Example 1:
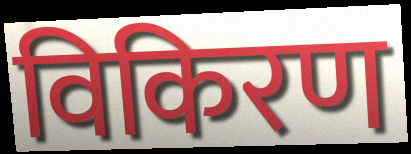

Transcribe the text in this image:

विकिरण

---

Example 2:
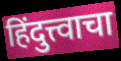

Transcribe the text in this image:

हिंदुत्त्वाचा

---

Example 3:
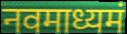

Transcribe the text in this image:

नवमाध्यमं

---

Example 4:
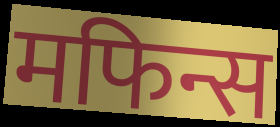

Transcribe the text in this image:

मफिन्स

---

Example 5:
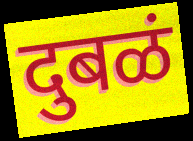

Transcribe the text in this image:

दुबळं